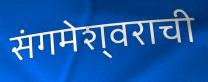
संगमेश्वराची